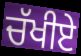
ਚੱਖੀਏ